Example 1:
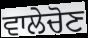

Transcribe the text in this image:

ਵਾਲੇਚੋਣ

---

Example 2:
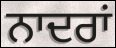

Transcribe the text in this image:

ਨਾਦਰਾਂ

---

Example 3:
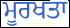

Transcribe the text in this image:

ਮੂਰਖਤਾ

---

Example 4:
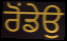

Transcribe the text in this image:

ਰੋਂਡੇਉ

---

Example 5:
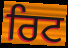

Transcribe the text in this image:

ਰਿਟ